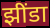
झींडा